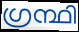
ഗ്രന്ഥി